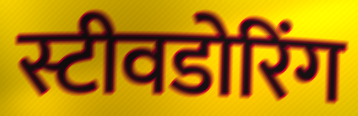
स्टीवडोरिंग